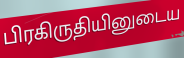
பிரகிருதியினுடைய